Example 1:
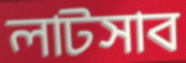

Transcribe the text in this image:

লাটসাব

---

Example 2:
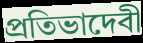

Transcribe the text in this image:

প্রতিভাদেবী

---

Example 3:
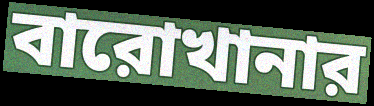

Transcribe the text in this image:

বারোখানার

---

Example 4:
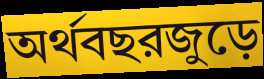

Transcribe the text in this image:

অর্থবছরজুড়ে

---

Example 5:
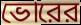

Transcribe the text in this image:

ভোরের